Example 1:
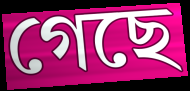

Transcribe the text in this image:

গেছে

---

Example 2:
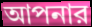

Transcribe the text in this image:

আপনার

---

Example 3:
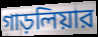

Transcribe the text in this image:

গাড়লিয়ার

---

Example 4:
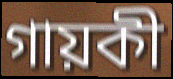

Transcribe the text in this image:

গায়কী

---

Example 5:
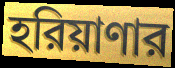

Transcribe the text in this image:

হরিয়াণার